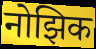
नोझिक